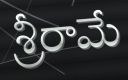
శ్రీరామే